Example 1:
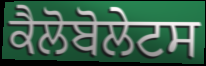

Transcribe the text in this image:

ਕੈਲੋਬੋਲੇਟਸ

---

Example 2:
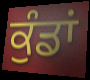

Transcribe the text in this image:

ਕੁੰਡਾਂ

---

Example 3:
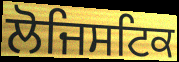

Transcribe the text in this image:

ਲੋਜਿਸਟਿਕ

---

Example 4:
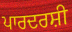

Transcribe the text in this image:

ਪਾਰਦਰਸ਼ੀ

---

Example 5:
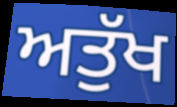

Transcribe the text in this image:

ਅਤੁੱਖ